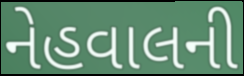
નેહવાલની